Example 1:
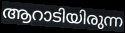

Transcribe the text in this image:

ആറാടിയിരുന്ന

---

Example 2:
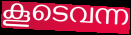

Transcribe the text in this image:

കൂടെവന്ന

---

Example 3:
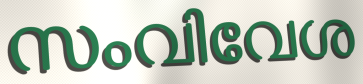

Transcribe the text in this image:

സംവിവേശ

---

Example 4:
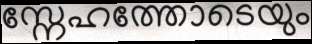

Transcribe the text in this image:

സ്നേഹത്തോടെയും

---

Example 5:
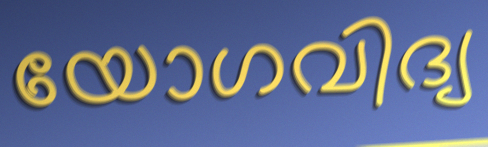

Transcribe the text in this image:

യോഗവിദ്യ